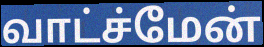
வாட்ச்மேன்